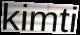
kimti